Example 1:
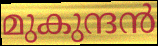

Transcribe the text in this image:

മുകുന്ദൻ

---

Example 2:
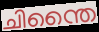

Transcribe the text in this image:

ചിന്തൈ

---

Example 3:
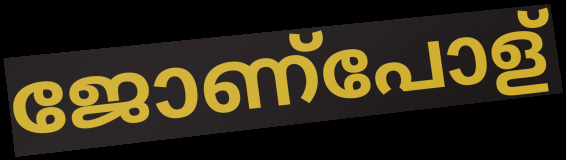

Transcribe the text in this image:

ജോണ്പോള്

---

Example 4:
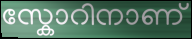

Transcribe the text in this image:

സ്കോറിനാണ്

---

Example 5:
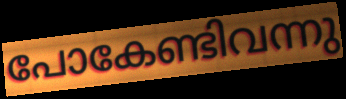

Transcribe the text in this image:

പോകേണ്ടിവന്നു